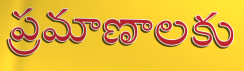
ప్రమాణాలకు